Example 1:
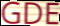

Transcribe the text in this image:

GDE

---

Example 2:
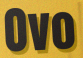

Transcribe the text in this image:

Ovo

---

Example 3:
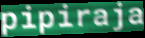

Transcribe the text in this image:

pipiraja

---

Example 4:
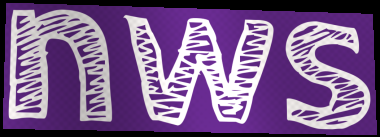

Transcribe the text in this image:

nws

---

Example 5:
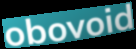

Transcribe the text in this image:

obovoid